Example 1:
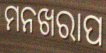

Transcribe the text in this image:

ମନଖରାପ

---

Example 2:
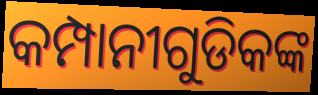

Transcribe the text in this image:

କମ୍ପାନୀଗୁଡିକଙ୍କ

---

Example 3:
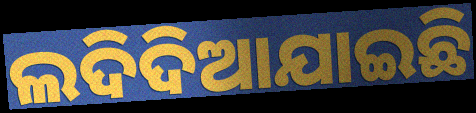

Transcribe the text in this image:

ଲଦିଦିଆଯାଇଛି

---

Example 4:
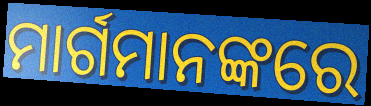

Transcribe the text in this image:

ମାର୍ଗମାନଙ୍କରେ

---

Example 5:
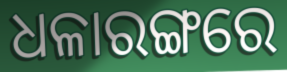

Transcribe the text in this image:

ଧଳାରଙ୍ଗରେ